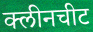
क्लीनचीट